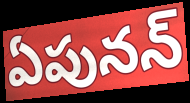
ఏపునన్